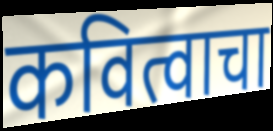
कवित्वाचा